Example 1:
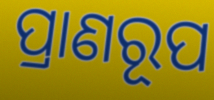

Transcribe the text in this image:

ପ୍ରାଣରୂପ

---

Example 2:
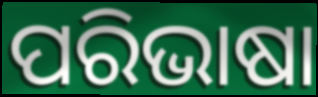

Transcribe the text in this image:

ପରିଭାଷା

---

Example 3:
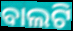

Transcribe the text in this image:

ବାଲଟି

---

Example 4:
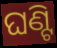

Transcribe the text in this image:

ଘଣ୍ଟି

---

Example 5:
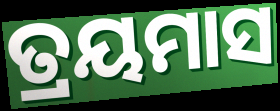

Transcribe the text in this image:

ତ୍ରୟମାସ